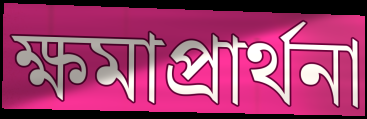
ক্ষমাপ্রার্থনা